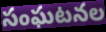
సంఘటనల